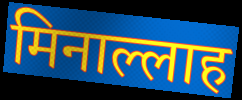
मिनाल्लाह